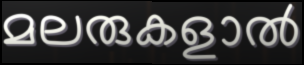
മലരുകളാൽ